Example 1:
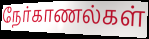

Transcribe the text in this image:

நேர்காணல்கள்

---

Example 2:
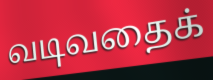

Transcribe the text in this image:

வடிவதைக்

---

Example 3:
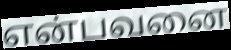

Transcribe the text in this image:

என்பவனை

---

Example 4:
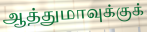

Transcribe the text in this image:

ஆத்துமாவுக்குக்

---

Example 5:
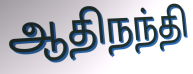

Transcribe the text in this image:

ஆதிநந்தி